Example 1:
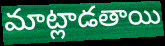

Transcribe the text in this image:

మాట్లాడతాయి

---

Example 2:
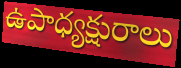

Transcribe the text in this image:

ఉపాధ్యక్షురాలు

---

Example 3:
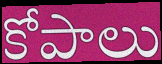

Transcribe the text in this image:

కోపాలు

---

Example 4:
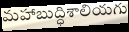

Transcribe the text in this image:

మహాబుద్ధిశాలియగు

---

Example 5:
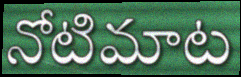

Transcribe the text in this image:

నోటిమాట